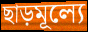
ছাড়মূল্যে